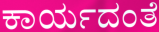
ಕಾರ್ಯದಂತೆ